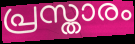
പ്രസ്താരം